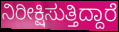
ನಿರೀಕ್ಷಿಸುತ್ತಿದ್ದಾರೆ